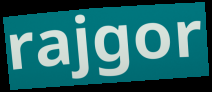
rajgor